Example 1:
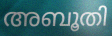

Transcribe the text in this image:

അബൂതി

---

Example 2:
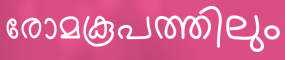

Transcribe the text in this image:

രോമകൂപത്തിലും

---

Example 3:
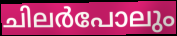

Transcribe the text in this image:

ചിലർപോലും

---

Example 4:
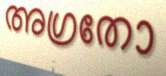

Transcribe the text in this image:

അഗ്രതോ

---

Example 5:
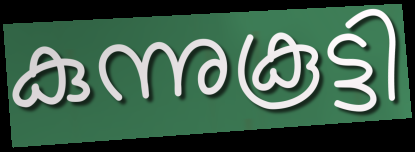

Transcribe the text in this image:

കുന്നുകൂട്ടി